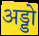
अड्डो